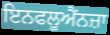
ਇਨਫਲੂਐਂਨਜ਼ਾ